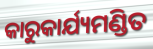
କାରୁକାର୍ଯ୍ୟମଣ୍ଡିତ